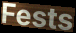
Fests